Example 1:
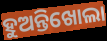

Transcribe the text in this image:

ହୁଅନ୍ତିଖୋଲା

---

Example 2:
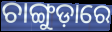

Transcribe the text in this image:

ଚାଙ୍ଗୁଡ଼ାରେ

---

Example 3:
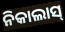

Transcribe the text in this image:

ନିକାଲାସ୍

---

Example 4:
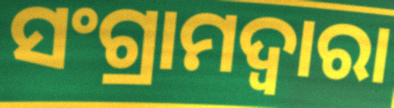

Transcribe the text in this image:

ସଂଗ୍ରାମଦ୍ଵାରା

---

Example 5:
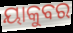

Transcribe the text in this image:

ୟାକୁବର